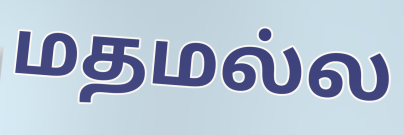
மதமல்ல